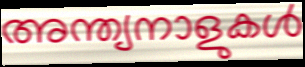
അന്ത്യനാളുകൾ